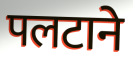
पलटाने